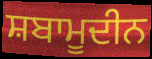
ਸ਼ਬਾਮੂਦੀਨ